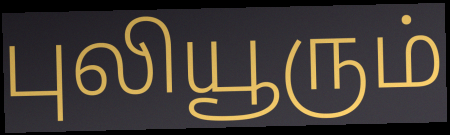
புலியூரும்